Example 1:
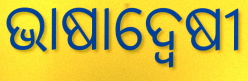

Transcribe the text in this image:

ଭାଷାଦ୍ଵେଷୀ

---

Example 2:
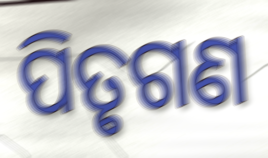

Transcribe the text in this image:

ପିତୃଗଣ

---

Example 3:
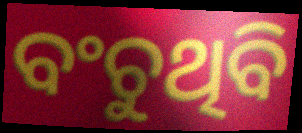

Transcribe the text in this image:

ବଂଚୁଥିବି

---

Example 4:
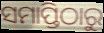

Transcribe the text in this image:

ସମାପ୍ତିଠାରୁ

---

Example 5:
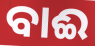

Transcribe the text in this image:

ବାଈ